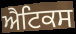
ਐਟਿਕਸ